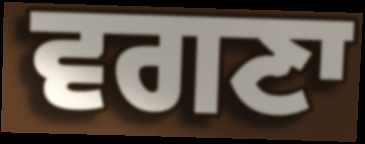
ਵਗਣਾ